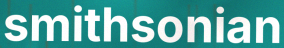
smithsonian